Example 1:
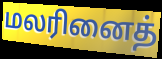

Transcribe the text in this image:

மலரினைத்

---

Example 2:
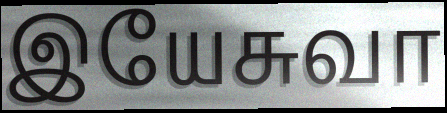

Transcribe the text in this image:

இயேசுவா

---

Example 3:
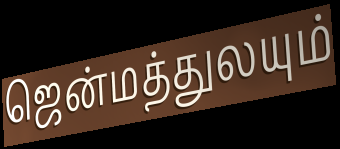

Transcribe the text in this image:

ஜென்மத்துலயும்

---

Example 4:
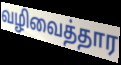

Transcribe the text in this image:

வழிவைத்தார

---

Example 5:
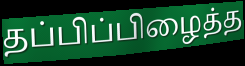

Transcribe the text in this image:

தப்பிப்பிழைத்த